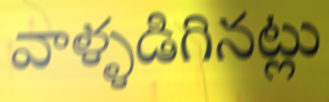
వాళ్ళడిగినట్లు